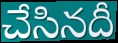
చేసినదీ